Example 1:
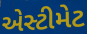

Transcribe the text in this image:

એસ્ટીમેટ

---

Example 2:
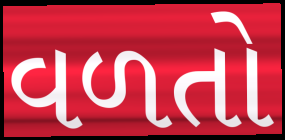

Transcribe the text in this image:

વળતો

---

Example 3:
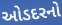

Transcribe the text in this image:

ઓડદરનો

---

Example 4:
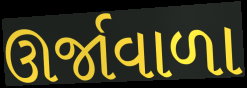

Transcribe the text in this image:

ઊર્જાવાળા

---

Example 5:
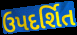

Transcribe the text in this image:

ઉપદર્શિત